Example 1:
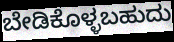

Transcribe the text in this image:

ಬೇಡಿಕೊಳ್ಳಬಹುದು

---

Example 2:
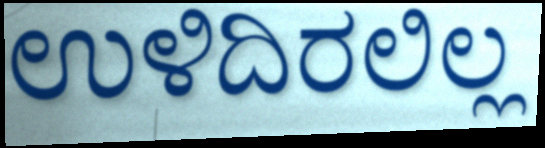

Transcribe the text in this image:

ಉಳಿದಿರಲಿಲ್ಲ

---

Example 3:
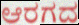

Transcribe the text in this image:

ಆರಗದ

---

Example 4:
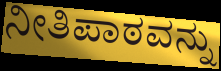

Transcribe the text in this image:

ನೀತಿಪಾಠವನ್ನು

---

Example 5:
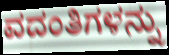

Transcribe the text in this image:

ವದಂತಿಗಳನ್ನು